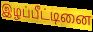
இழப்பீட்டினை